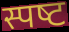
स्‍पष्‍ट